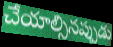
చేయాల్సినప్పుడు